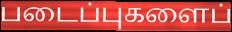
படைப்புகளைப்